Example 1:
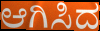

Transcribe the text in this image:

ಆಗಿಸಿದ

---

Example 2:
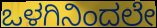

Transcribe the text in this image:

ಒಳಗಿನಿಂದಲೇ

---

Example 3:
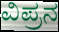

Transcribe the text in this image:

ವಿಪ್ರನ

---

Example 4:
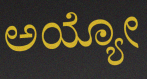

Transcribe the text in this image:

ಅಯ್ಯೋ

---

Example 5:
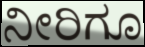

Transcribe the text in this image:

ನೀರಿಗೂ